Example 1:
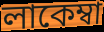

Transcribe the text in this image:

লাকেম্বা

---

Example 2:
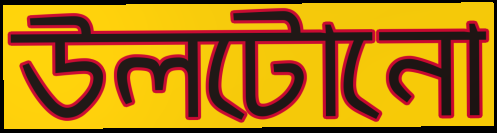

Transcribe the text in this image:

উলটোনো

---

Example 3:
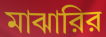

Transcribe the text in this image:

মাঝারির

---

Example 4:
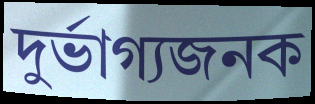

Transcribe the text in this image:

দুর্ভাগ্যজনক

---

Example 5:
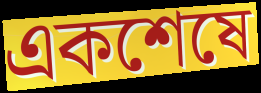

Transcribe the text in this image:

একশেষে